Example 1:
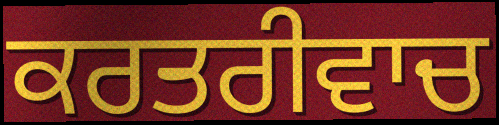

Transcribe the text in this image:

ਕਰਤਰੀਵਾਚ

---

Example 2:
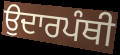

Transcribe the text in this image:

ਉਦਾਰਪੰਥੀ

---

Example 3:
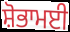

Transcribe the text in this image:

ਸ਼ੋਭਾਮਈ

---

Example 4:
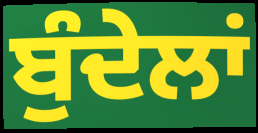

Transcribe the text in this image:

ਬੁੰਦੇਲਾਂ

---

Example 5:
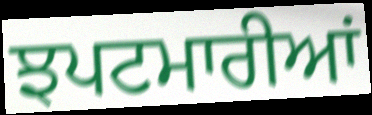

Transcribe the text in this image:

ਝਪਟਮਾਰੀਆਂ